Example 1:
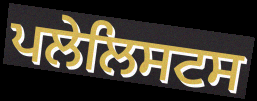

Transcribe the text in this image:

ਪਲੇਲਿਸਟਸ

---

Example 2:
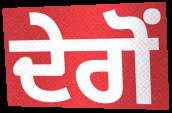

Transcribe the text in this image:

ਦੇਗੋਂ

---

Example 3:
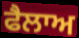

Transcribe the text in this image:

ਫੈਲਾਅ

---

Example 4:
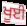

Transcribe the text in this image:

ਖੂਈ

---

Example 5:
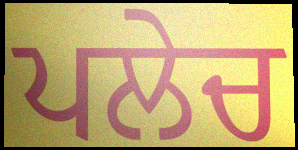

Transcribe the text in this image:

ਪਲੇਚ